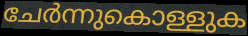
ചേർന്നുകൊള്ളുക